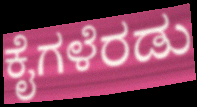
ಕೈಗಳೆರಡು